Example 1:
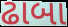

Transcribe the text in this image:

ઢાબા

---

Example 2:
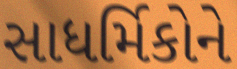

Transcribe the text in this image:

સાધર્મિકોને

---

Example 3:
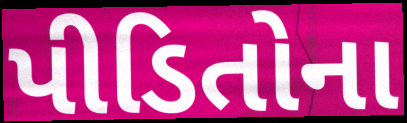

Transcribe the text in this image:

પીડિતોના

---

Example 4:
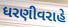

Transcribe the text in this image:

ધરણીવરાહે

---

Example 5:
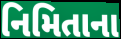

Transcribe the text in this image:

નિમિતાના